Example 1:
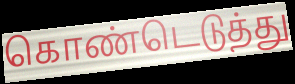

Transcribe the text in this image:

கொண்டெடுத்து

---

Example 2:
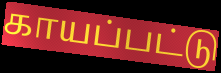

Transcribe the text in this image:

காயப்பட்டு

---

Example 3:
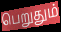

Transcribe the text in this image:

பெறுதும்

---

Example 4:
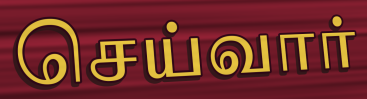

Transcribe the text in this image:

செய்வார்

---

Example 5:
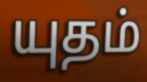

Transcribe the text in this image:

யுதம்